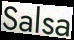
Salsa